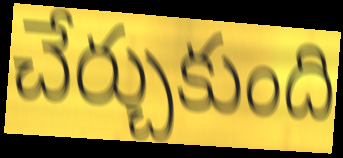
చేర్చుకుంది